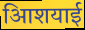
आिशयाई